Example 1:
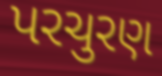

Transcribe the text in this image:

પરચુરણ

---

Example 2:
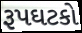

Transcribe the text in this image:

રૂપઘટકો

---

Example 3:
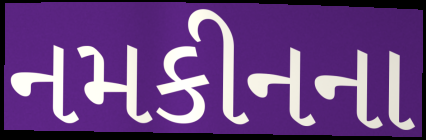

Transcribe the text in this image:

નમકીનના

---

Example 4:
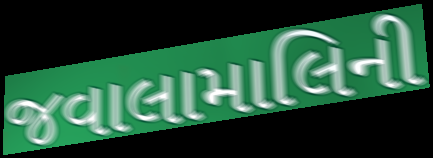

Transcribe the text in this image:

જવાલામાલિની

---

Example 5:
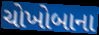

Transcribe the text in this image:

ચોખોબાના